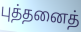
புத்தனைத்